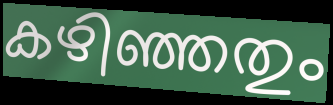
കഴിഞ്ഞതും